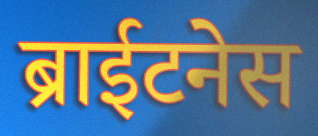
ब्राईटनेस